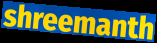
shreemanth